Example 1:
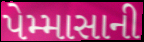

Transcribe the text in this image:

પેમ્માસાની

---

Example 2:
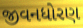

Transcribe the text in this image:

જીવનધોરણ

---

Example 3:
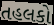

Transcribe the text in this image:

તહલકો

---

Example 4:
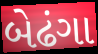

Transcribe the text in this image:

બેઢંગા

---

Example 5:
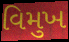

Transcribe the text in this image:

વિમુખ